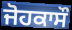
ਜੋਹਕਾਸੌ